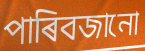
পাৰিবজানো